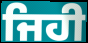
ਜਿਹੀ